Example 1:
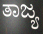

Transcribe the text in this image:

ತಾಜ್ಯ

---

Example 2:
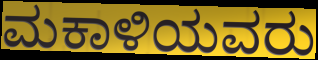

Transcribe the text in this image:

ಮಕಾಳಿಯವರು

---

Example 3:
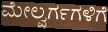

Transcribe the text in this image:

ಮೇಲ್ವರ್ಗಗಳಿಗೆ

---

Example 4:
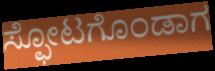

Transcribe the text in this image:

ಸ್ಫೋಟಗೊಂಡಾಗ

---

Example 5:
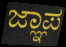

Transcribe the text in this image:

ಜ್ಞಾಪ